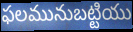
ఫలమునుబట్టియు